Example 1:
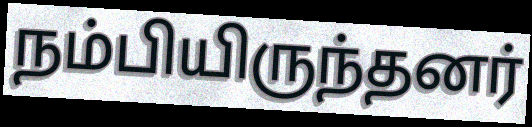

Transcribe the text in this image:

நம்பியிருந்தனர்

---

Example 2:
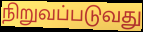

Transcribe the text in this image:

நிறுவப்படுவது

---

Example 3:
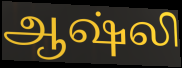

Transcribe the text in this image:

ஆஷ்லி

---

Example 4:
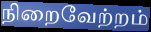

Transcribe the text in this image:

நிறைவேற்றம்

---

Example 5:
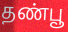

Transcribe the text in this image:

தண்பூ